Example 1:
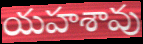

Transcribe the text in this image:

యహశావు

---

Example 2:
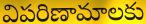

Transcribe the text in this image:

విపరిణామాలకు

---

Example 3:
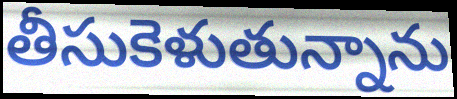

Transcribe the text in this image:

తీసుకెళుతున్నాను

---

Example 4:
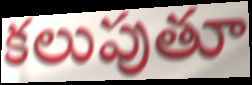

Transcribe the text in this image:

కలుపుతూ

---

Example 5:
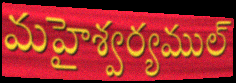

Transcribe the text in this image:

మహైశ్వర్యముల్